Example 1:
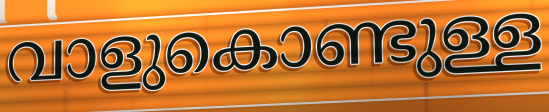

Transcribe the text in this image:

വാളുകൊണ്ടുള്ള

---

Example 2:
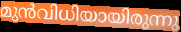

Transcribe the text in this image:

മുൻവിധിയായിരുന്നു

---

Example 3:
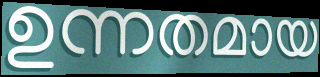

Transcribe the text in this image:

ഉന്നതമായ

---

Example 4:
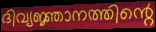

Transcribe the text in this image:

ദിവ്യജ്ഞാനത്തിന്റെ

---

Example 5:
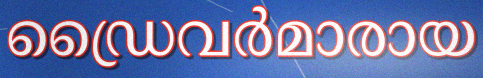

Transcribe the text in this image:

ഡ്രൈവർമാരായ